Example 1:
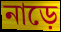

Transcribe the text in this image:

নাড়ে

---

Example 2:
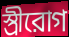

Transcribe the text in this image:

স্ত্রীরোগ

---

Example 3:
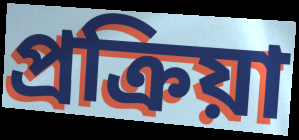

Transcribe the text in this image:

প্রক্রিয়া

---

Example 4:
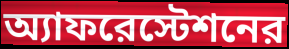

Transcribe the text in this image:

অ্যাফরেস্টেশনের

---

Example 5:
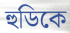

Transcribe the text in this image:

হুডিকে